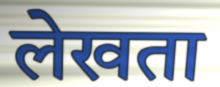
लेखता